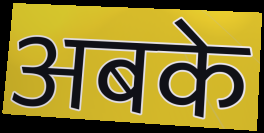
अबके